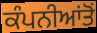
ਕੰਪਨੀਆਂਤੋਂ